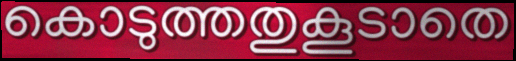
കൊടുത്തതുകൂടാതെ